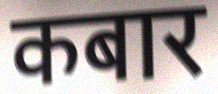
कबार